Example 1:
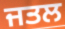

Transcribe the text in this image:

ਜਤਲ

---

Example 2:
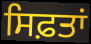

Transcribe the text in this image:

ਸਿਫ਼ਤਾਂ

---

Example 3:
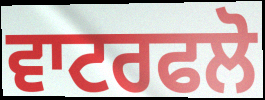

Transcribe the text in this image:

ਵਾਟਰਫਲੋ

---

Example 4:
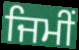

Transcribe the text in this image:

ਜਿਮੀਂ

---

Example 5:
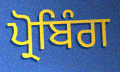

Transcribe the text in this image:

ਪ੍ਰੋਬਿੰਗ